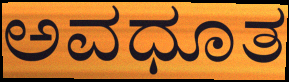
ಅವಧೂತ